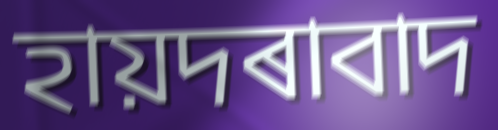
হায়দৰাবাদ